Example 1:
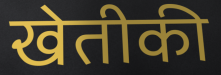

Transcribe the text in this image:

खेतीकी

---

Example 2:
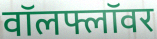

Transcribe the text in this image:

वॉलफ्लॉवर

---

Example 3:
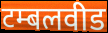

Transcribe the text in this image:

टम्बलवीड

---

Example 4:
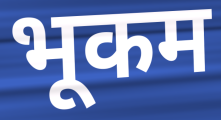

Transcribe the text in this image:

भूकम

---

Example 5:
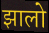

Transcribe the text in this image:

झालो